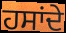
ਹਸਾਂਦੇ